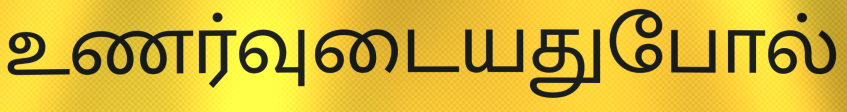
உணர்வுடையதுபோல்